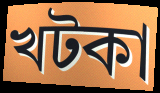
খটকা